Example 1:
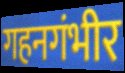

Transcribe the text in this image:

गहनगंभीर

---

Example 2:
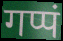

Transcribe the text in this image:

गप्पं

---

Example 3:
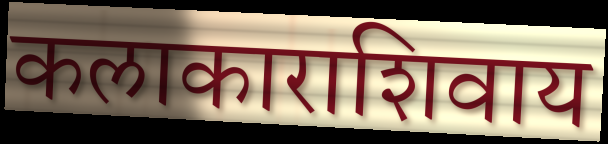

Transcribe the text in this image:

कलाकाराशिवाय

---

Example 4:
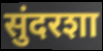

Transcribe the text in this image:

सुंदरशा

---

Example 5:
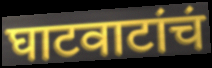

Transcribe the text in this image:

घाटवाटांचं